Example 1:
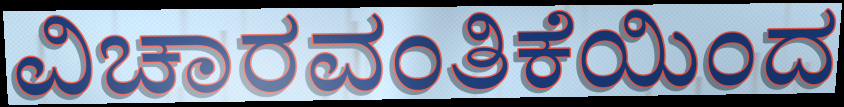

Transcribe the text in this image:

ವಿಚಾರವಂತಿಕೆಯಿಂದ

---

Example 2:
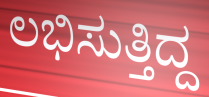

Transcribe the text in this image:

ಲಭಿಸುತ್ತಿದ್ದ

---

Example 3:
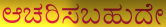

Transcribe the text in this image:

ಆಚರಿಸಬಹುದೇ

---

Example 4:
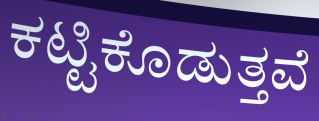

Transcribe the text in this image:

ಕಟ್ಟಿಕೊಡುತ್ತವೆ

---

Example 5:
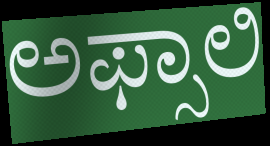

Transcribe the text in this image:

ಅಫ್ಸಾಲಿ